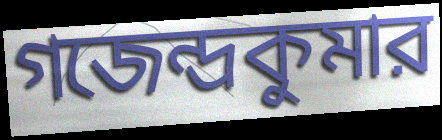
গজেন্দ্রকুমার